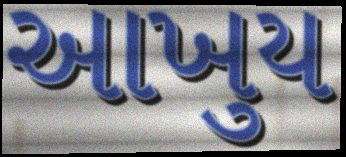
આખુય